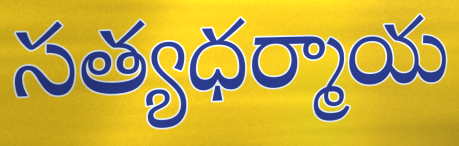
సత్యధర్మాయ